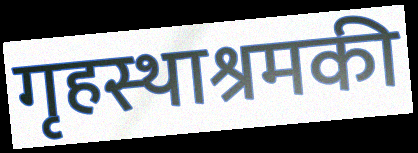
गृहस्थाश्रमकी